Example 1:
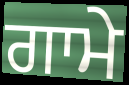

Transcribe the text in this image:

ਗਾਮੇ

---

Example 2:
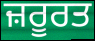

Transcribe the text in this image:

ਜ਼ਰੂਰਤ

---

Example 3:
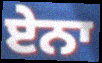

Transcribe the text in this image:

ਏਨਾ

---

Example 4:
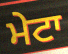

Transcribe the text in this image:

ਮੇਟਾ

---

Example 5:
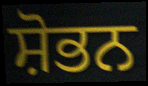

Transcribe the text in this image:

ਸ਼ੋਭਨ